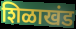
शिळाखंड